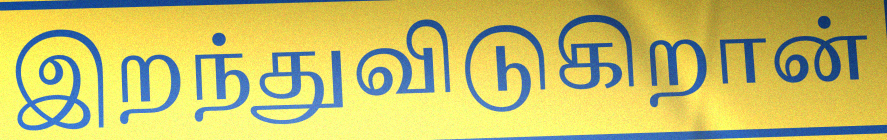
இறந்துவிடுகிறான்